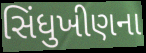
સિંધુખીણના